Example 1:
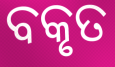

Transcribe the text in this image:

ବକୃତ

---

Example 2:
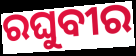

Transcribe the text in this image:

ରଘୁବୀର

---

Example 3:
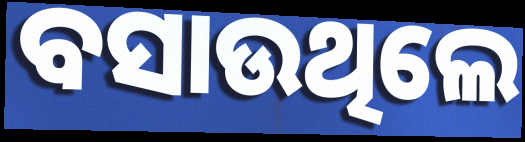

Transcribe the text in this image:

ବସାଉଥିଲେ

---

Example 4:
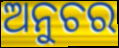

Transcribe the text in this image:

ଅନୁଚର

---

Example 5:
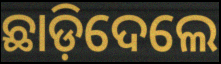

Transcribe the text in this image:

ଛାଡ଼ିଦେଲେ